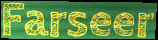
Farseer